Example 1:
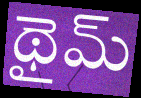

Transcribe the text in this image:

థైమ్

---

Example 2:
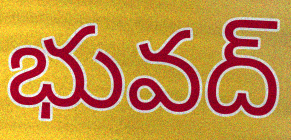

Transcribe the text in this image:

భువద్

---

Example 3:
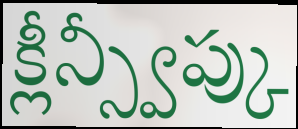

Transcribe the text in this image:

క్లీన్స్వీప్కు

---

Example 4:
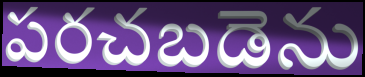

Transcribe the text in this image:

పరచబడెను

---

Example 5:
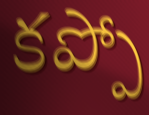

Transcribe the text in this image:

కప్పో